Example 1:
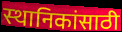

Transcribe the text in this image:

स्थानिकांसाठी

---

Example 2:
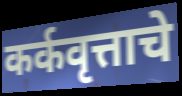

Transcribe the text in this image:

कर्कवृत्ताचे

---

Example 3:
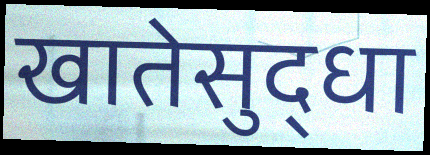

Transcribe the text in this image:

खातेसुद्धा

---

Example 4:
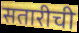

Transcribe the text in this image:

सतारीची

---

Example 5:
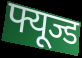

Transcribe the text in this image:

फ्यूज्ड